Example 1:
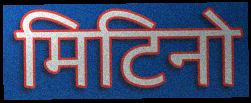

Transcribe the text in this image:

मिटिनो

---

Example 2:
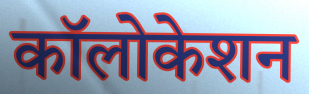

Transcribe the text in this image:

कॉलोकेशन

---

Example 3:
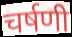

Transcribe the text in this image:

चर्षणी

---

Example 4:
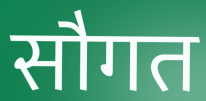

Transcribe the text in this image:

सौगत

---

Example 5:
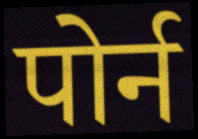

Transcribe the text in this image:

पोर्न